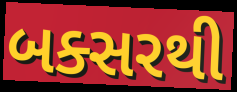
બક્સરથી